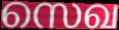
സെഖ